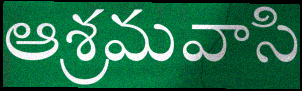
ఆశ్రమవాసి